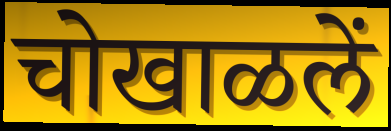
चोखाळलें